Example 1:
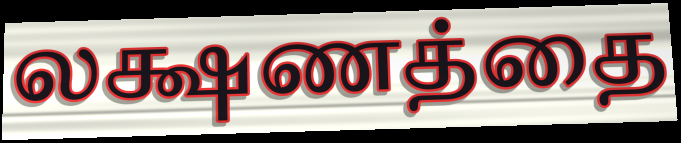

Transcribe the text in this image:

லக்ஷணத்தை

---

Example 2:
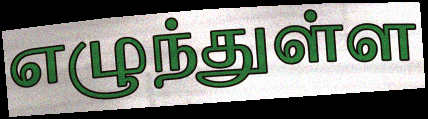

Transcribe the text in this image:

எழுந்துள்ள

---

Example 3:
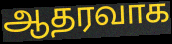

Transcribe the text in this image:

ஆதரவாக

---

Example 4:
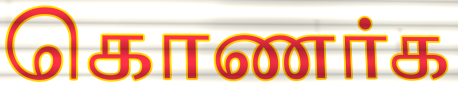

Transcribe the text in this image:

கொணர்க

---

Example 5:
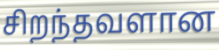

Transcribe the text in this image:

சிறந்தவளான